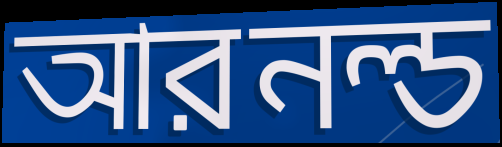
আরনল্ড